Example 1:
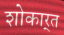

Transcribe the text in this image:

शोकार्त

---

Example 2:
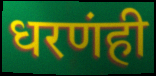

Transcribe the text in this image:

धरणंही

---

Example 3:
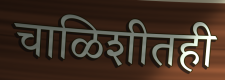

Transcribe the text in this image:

चाळिशीतही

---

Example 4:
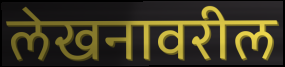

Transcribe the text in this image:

लेखनावरील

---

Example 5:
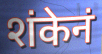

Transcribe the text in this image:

शंकेनं